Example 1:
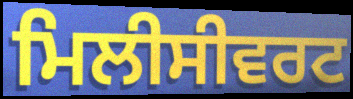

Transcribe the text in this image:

ਮਿਲੀਸੀਵਰਟ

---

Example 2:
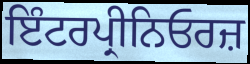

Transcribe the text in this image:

ਇੰਟਰਪ੍ਰੀਨਿਓਰਜ਼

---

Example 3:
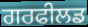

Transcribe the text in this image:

ਗਰਫੀਲਡ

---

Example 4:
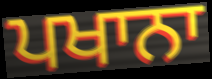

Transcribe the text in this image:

ਪਖਾਨਾ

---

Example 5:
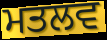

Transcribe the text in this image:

ਮਤਲਵ